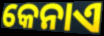
କେନାଏ